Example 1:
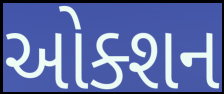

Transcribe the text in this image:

ઓક્શન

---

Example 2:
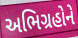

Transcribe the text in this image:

અભિગ્રહોને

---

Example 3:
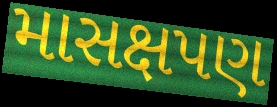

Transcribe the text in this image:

માસક્ષપણ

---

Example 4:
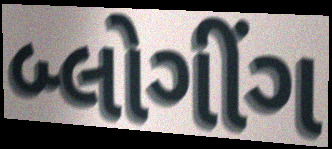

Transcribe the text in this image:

બ્લોગીંગ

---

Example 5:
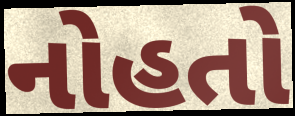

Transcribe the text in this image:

નોહતો